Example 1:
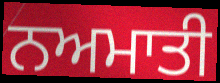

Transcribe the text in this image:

ਨਅਮਾਤੀ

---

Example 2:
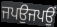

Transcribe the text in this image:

ਜਪਉਜਪਉਂ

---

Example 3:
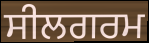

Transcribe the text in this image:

ਸੀਲਗਰਮ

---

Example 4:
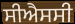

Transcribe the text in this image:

ਸੀਐਸਸੀ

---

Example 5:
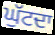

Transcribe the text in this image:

ਘੁੱਟਦਾ